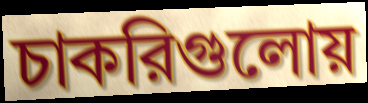
চাকরিগুলোয়